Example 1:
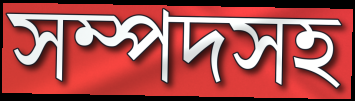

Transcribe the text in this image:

সম্পদসহ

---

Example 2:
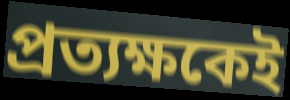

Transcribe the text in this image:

প্রত্যক্ষকেই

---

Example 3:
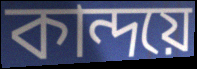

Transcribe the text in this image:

কান্দয়ে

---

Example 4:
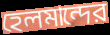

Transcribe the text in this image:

হেলমান্দের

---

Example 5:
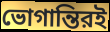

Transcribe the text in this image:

ভোগান্তিরই